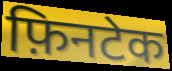
फ़िनटेक